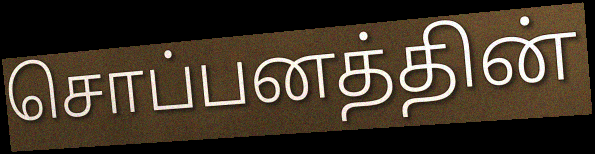
சொப்பனத்தின்